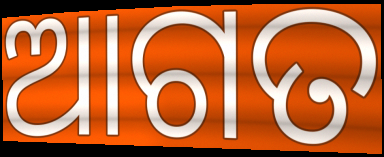
ଆଗତ